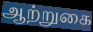
ஆற்றுகை